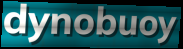
dynobuoy